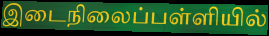
இடைநிலைப்பள்ளியில்